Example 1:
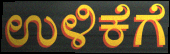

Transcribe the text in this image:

ಉಳಿಕೆಗೆ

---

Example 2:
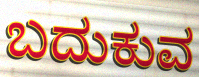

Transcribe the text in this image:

ಬದುಕುವ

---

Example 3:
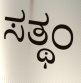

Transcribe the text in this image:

ಸತ್ಥಂ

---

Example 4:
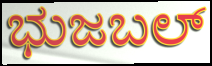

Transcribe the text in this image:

ಭುಜಬಲ್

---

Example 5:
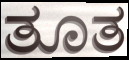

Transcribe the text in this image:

ತೂತ